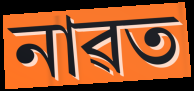
নাৱত